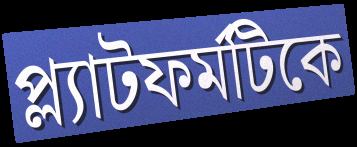
প্ল্যাটফর্মটিকে